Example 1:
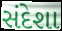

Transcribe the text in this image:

સંદેશા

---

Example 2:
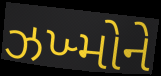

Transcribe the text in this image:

ઝખ્મોને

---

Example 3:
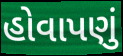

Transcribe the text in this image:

હોવાપણું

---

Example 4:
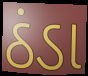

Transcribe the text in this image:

ઠંડા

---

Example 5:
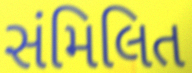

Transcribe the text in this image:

સંમિલિત